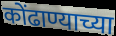
कोंढाण्याच्या